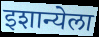
इशान्येला